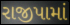
રાજીપામાં